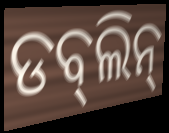
ଡବ୍‌ଲିନ୍